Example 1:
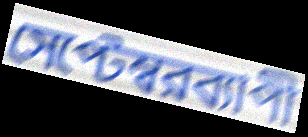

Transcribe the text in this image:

সেপ্টেম্বরব্যাপী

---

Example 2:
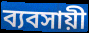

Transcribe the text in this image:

ব্যবসায়ী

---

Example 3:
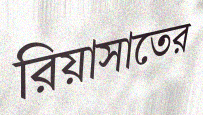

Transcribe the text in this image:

রিয়াসাতের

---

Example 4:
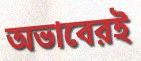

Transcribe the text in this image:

অভাবেরই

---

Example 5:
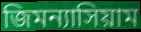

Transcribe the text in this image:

জিমন্যাসিয়াম